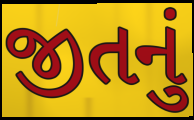
જીતનું